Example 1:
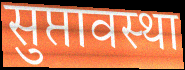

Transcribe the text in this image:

सुप्तावस्था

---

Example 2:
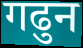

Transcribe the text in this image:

गढुन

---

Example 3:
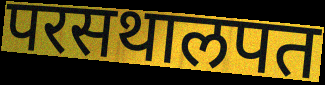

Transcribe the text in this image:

परसथालपत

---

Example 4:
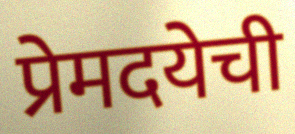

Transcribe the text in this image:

प्रेमदयेची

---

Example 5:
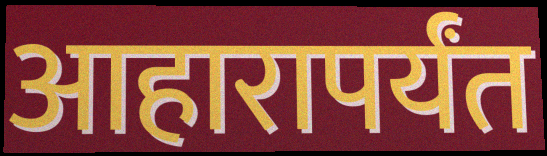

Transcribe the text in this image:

आहारापर्यंत